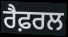
ਰੈਫ਼ਰਲ